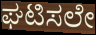
ಘಟಿಸಲೇ